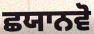
ਛਯਾਨਵੋ